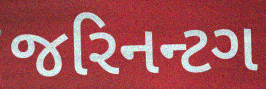
જરિનન્ટગ